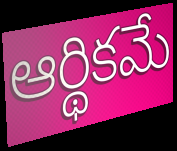
ఆర్థికమే